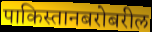
पाकिस्तानबरोबरील